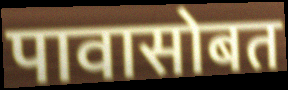
पावासोबत